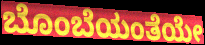
ಬೊಂಬೆಯಂತೆಯೇ